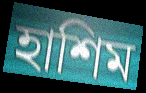
হাশিম